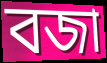
বজা